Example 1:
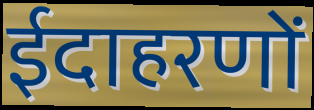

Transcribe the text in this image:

ईदाहरणों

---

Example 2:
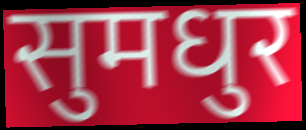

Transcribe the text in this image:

सुमधुर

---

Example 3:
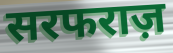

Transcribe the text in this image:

सरफराज़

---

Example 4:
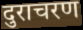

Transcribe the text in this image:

दुराचरण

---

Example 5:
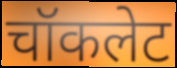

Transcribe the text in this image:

चॉकलेट